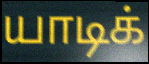
யாடிக்